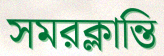
সমরক্লান্তি